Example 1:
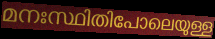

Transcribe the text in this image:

മനഃസ്ഥിതിപോലെയുള്ള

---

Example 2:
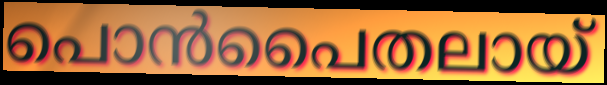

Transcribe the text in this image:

പൊൻപൈതലായ്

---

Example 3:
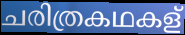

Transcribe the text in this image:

ചരിത്രകഥകള്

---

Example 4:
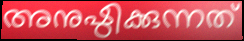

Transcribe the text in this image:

അനുഷ്ഠിക്കുന്നത്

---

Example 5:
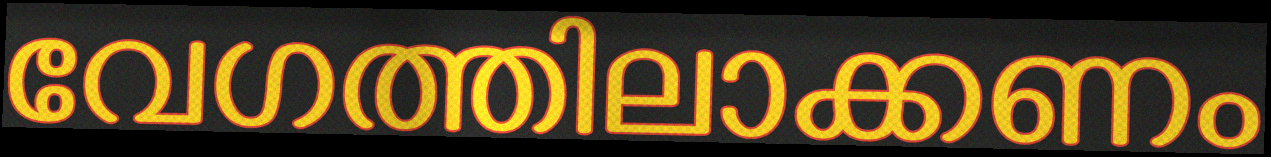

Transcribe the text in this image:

വേഗത്തിലാക്കണം